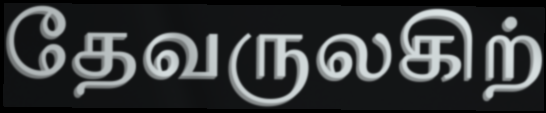
தேவருலகிற்